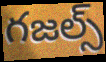
గజల్స్